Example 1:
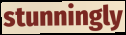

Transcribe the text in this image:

stunningly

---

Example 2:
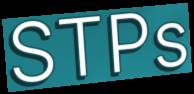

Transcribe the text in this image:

STPs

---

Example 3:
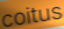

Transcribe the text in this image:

coitus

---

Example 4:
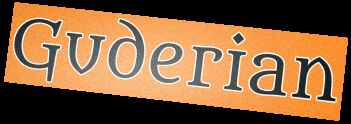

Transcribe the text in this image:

Guderian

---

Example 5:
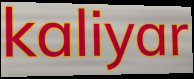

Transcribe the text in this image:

kaliyar